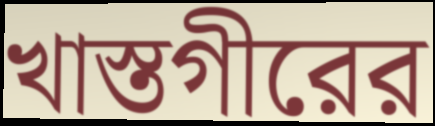
খাস্তগীরের